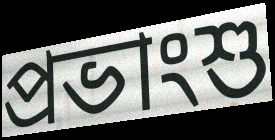
প্রভাংশু